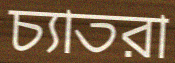
চ্যাতরা